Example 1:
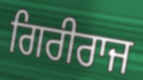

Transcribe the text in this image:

ਗਿਰੀਰਾਜ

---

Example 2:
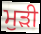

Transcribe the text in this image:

ਮੁੜੀ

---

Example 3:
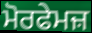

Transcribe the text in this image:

ਮੋਰਫੇਮਜ਼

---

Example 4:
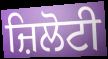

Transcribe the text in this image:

ਜ਼ਿਲੋਟੀ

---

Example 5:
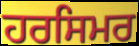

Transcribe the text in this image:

ਹਰਸਿਮਰ